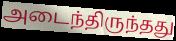
அடைந்திருந்தது